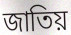
জাতিয়